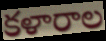
కళారాల